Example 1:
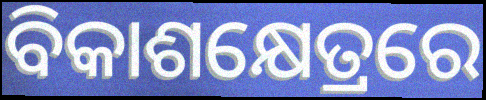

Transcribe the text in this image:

ବିକାଶକ୍ଷେତ୍ରରେ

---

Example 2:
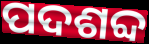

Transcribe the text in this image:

ପଦଶବ୍ଦ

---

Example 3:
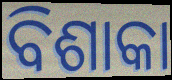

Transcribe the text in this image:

ବିଶାକା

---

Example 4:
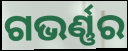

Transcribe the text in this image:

ଗଭର୍ଣ୍ଣର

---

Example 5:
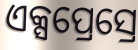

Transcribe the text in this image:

ଏକ୍ସପ୍ରେସ୍ରେ